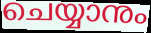
ചെയ്യാനും